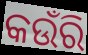
କଉଁରି